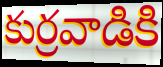
కుర్రవాడికి